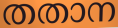
തതാന